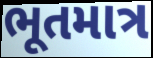
ભૂતમાત્ર